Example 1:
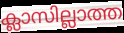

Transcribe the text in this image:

ക്ലാസില്ലാത്ത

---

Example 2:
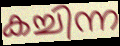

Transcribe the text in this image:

കച്ചിന്ന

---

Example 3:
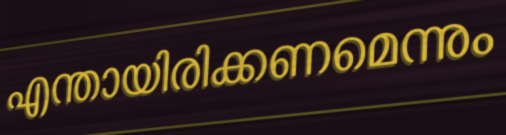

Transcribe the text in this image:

എന്തായിരിക്കണമെന്നും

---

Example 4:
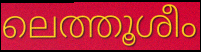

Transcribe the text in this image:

ലെത്തൂശീം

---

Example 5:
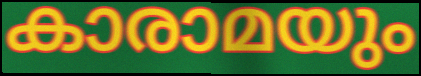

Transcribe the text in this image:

കാരാമയും